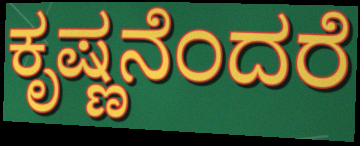
ಕೃಷ್ಣನೆಂದರೆ